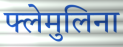
फ्लेमुलिना